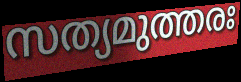
സത്യമുത്തരഃ